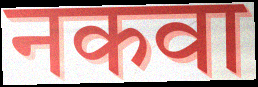
नकवा